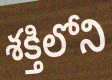
శక్తిలోని